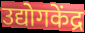
उद्योगकेंद्र